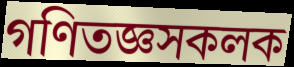
গণিতজ্ঞসকলক